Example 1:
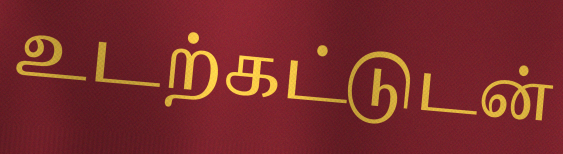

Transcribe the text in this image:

உடற்கட்டுடன்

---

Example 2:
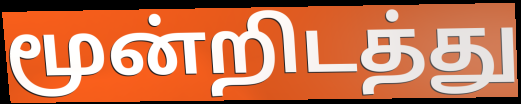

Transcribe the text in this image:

மூன்றிடத்து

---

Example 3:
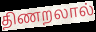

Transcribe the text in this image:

திணறலால்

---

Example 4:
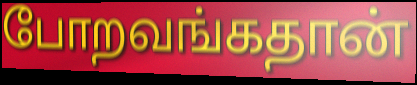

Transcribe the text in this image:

போறவங்கதான்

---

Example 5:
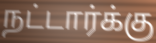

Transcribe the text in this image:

நட்டார்க்கு